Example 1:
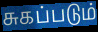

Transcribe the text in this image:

சுகப்படும்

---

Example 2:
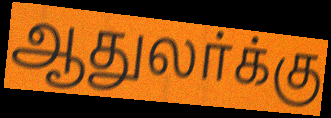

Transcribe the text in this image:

ஆதுலர்க்கு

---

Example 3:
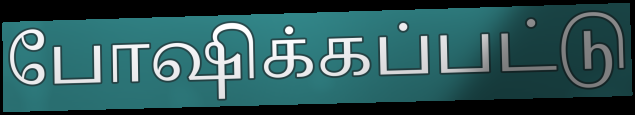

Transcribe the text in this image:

போஷிக்கப்பட்டு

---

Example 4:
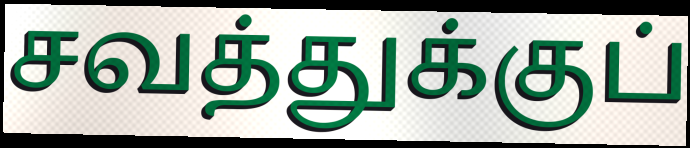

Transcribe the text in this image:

சவத்துக்குப்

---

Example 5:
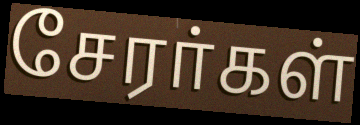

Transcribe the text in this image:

சேரர்கள்